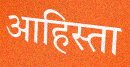
आहिस्ता